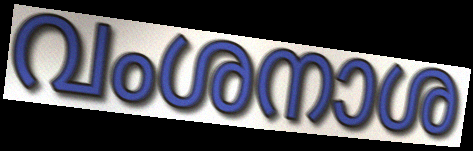
വംശനാശ